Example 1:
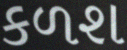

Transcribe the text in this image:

કળશ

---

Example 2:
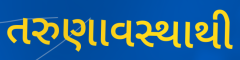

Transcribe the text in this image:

તરુણાવસ્થાથી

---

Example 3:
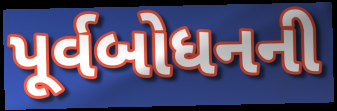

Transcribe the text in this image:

પૂર્વબોધનની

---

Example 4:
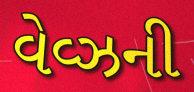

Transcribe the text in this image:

વેવ્ઝની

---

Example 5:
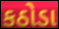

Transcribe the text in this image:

કઠોડા